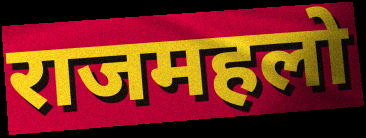
राजमहलो